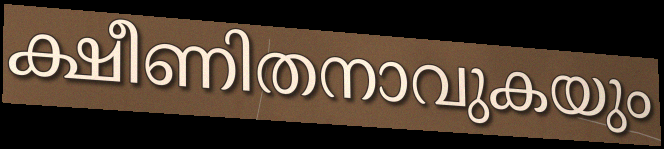
ക്ഷീണിതനാവുകയും